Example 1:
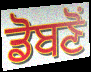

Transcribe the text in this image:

ਡੋਬਣੋਂ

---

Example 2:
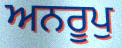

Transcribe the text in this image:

ਅਨਰੂਪੁ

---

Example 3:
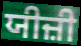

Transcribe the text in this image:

ਯੀਜ਼ੀ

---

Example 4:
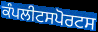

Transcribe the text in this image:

ਕੰਪਲੀਟਸਪੋਰਟਸ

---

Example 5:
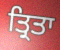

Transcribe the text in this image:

ਤ੍ਰਿਤਾ